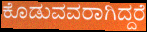
ಕೊಡುವವರಾಗಿದ್ದರೆ